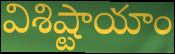
విశిష్టాయాం